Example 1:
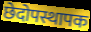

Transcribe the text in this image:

छेदोपस्थापक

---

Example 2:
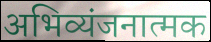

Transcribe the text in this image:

अभिव्यंजनात्मक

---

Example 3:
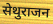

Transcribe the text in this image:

सेथुराजन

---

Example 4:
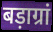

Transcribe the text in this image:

बड़ाग्रां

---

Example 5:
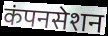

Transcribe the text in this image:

कंपनसेशन